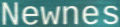
Newnes